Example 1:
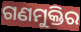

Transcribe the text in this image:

ଗଣମୁକ୍ତିର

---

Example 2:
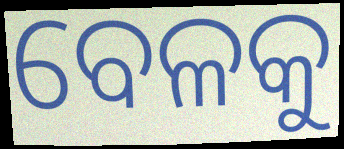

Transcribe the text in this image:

ବେଳକୁ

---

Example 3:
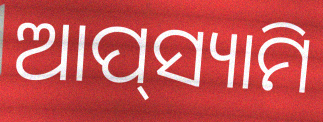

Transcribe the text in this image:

ଆପ୍‌ସ୍ୟାମି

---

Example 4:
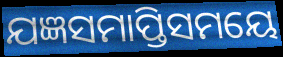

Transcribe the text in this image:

ଯଜ୍ଞସମାପ୍ତିସମୟେ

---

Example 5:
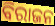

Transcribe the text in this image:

ବିରାଜନ